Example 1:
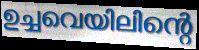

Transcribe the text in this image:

ഉച്ചവെയിലിന്റെ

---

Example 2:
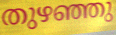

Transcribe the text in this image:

തുഴഞ്ഞു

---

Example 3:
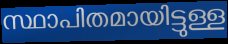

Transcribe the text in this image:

സ്ഥാപിതമായിട്ടുള്ള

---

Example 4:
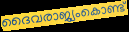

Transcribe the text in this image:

ദൈവരാജ്യംകൊണ്ട്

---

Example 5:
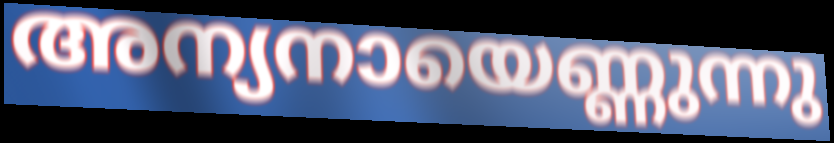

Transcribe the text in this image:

അന്യനായെണ്ണുന്നു